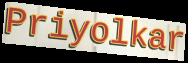
Priyolkar